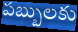
పబ్బులకు